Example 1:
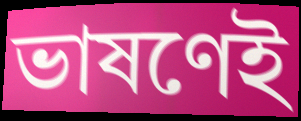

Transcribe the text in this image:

ভাষণেই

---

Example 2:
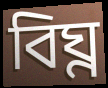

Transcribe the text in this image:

বিঘ্ন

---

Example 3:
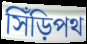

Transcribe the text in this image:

সিঁড়িপথ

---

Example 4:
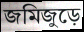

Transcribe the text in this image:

জমিজুড়ে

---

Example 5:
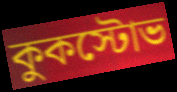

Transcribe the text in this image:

কুকস্টোভ